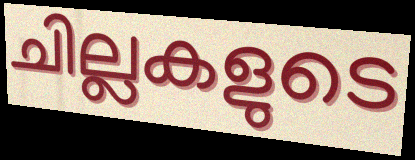
ചില്ലകളുടെ